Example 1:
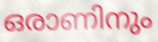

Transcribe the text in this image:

ഒരാണിനും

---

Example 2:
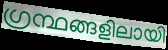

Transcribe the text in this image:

ഗ്രന്ഥങ്ങളിലായി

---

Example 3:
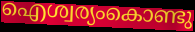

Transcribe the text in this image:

ഐശ്വര്യംകൊണ്ടു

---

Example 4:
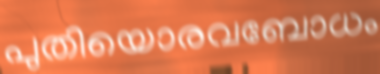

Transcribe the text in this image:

പുതിയൊരവബോധം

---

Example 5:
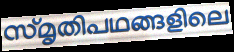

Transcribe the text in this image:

സ്മൃതിപഥങ്ങളിലെ